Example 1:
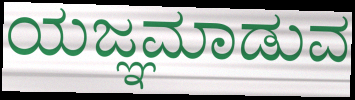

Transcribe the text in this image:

ಯಜ್ಞಮಾಡುವ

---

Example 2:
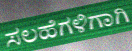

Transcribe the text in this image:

ಸಲಹೆಗಳಿಗಾಗಿ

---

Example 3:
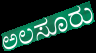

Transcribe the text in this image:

ಅಲಸೂರು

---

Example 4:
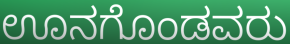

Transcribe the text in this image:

ಊನಗೊಂಡವರು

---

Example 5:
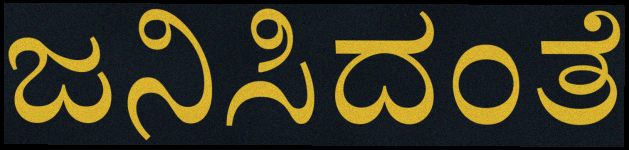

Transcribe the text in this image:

ಜನಿಸಿದಂತೆ